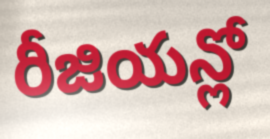
రీజియన్లో